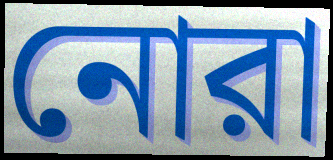
নোরা